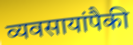
व्यवसायांपैकी